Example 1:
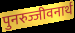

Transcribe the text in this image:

पुनरुज्जीवनार्थ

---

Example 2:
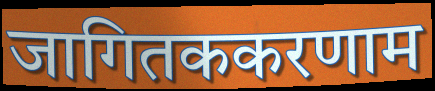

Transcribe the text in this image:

जागितककरणाम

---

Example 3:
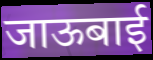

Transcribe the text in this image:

जाऊबाई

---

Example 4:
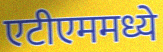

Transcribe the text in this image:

एटीएममध्ये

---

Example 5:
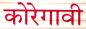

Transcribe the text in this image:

कोरेगावी